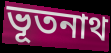
ভূতনাথ